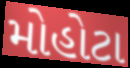
મોહોટા